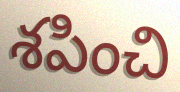
శపించి